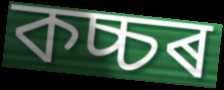
কচ্চৰ